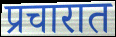
प्रचारात